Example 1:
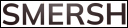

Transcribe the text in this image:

SMERSH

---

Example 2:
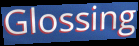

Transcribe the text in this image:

Glossing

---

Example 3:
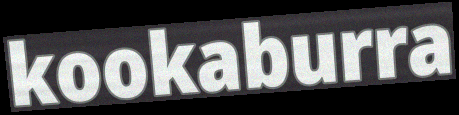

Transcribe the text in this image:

kookaburra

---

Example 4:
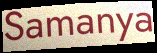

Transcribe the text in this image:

Samanya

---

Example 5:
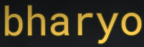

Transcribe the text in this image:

bharyo